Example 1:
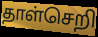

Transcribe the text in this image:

தாள்செறி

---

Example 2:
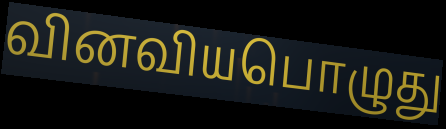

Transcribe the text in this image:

வினவியபொழுது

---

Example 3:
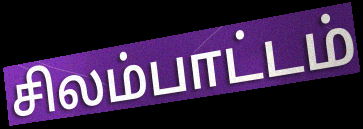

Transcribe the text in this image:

சிலம்பாட்டம்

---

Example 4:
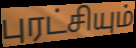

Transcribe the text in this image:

புரட்சியும்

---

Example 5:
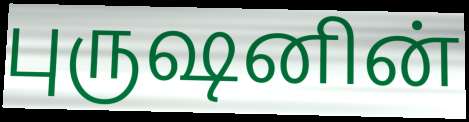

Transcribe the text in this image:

புருஷனின்